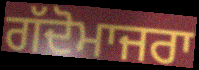
ਗੱਦੋਮਾਜਰਾ